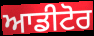
ਆਡੀਟੋਰ